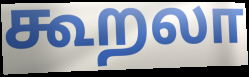
கூறலா